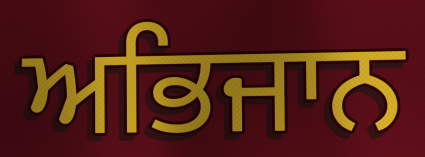
ਅਭਿਜਾਨ